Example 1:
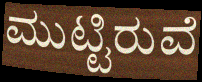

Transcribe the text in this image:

ಮುಟ್ಟಿರುವೆ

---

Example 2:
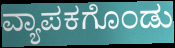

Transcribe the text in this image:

ವ್ಯಾಪಕಗೊಂಡು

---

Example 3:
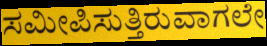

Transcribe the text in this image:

ಸಮೀಪಿಸುತ್ತಿರುವಾಗಲೇ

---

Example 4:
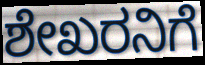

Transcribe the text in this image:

ಶೇಖರನಿಗೆ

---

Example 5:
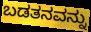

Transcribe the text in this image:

ಬಡತನವನ್ನು